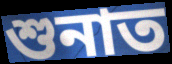
শুনাত